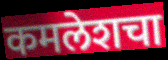
कमलेशचा